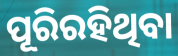
ପୂରିରହିଥିବା